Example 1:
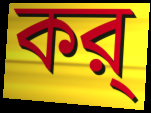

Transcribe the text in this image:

কর্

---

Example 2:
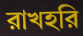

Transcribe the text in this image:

রাখহরি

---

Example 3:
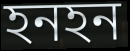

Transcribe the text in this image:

হনহন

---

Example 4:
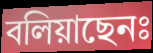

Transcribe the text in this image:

বলিয়াছেনঃ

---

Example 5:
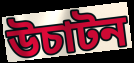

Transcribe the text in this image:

উচাটন